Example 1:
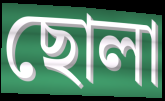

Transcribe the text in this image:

ছোলা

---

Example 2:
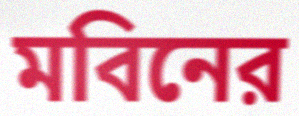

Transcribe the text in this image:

মবিনের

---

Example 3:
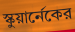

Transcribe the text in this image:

স্কুয়ার্নেকের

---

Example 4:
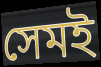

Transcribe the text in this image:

সেমই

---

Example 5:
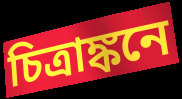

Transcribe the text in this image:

চিত্রাঙ্কনে